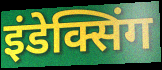
इंडेक्सिंग